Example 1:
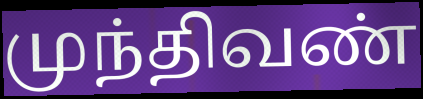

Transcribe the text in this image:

முந்திவண்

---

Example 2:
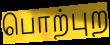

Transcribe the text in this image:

பொற்புற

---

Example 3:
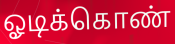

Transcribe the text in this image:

ஓடிக்கொண்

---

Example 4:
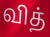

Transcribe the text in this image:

வித்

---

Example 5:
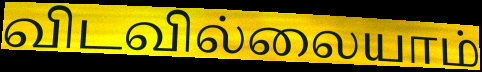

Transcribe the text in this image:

விடவில்லையாம்